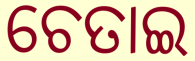
ଚେତାଇ